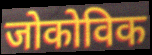
जोकोविक